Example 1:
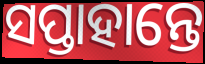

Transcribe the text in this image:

ସପ୍ତାହାନ୍ତେ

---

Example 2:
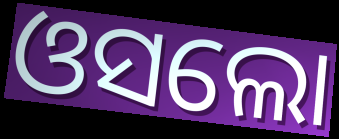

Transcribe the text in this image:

ଓସଲୋ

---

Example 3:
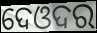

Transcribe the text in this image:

ଦେଓଦର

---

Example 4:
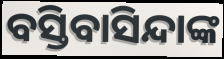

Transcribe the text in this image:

ବସ୍ତିବାସିନ୍ଦାଙ୍କ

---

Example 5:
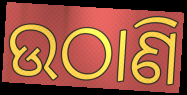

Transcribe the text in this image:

ଉଠାଣି